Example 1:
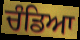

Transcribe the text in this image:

ਚੰਡਿਆ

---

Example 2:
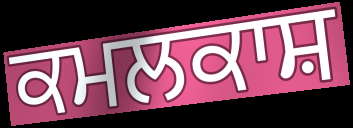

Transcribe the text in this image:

ਕਮਲਕਾਸ਼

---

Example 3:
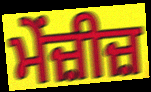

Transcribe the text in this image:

ਮੇਂਜ਼ੀਜ਼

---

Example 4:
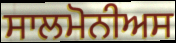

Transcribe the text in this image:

ਸਾਲਮੋਨੀਅਸ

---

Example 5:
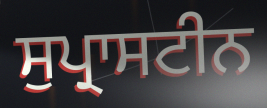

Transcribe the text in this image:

ਸੁਪ੍ਰਾਸਟੀਨ